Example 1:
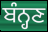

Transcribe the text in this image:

ਬੰਨ੍ਹਣ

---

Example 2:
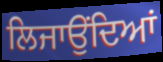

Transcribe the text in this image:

ਲਿਜਾਉਂਦਿਆਂ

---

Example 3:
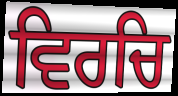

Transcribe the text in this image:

ਵਿਰਚਿ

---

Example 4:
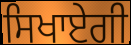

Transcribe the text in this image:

ਸਿਖਾਏਗੀ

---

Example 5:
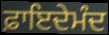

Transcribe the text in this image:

ਫ਼ਾਇਦੇਮੰਦ